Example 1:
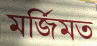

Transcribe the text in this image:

মর্জিমত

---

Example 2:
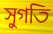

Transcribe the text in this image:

সুগতি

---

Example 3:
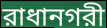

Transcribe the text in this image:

রাধানগরী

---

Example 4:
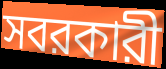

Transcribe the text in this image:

সবরকারী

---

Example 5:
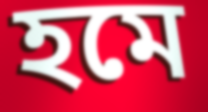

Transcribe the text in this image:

হমে